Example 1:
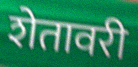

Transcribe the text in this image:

शेतावरी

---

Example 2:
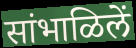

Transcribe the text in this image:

सांभाळिलें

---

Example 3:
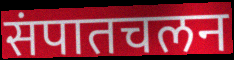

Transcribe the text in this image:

संपातचलन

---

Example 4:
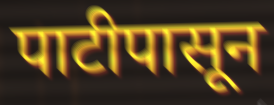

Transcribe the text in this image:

पाटीपासून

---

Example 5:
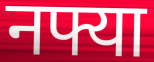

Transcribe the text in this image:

नफ्या